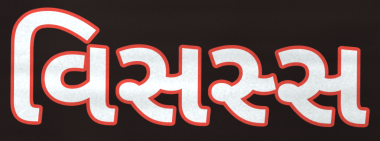
વિસસ્સ